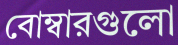
বোম্বারগুলো